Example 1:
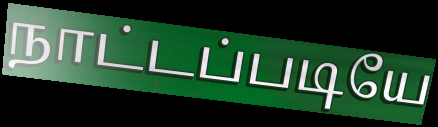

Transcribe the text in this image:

நாட்டப்படியே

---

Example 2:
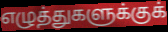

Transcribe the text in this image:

எழுத்துகளுக்குக்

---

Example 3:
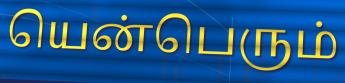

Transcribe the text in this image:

யென்பெரும்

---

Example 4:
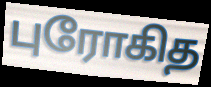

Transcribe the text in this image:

புரோகித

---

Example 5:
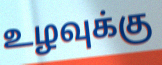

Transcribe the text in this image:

உழவுக்கு